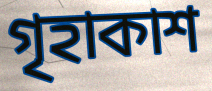
গৃহাকাশ